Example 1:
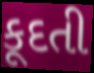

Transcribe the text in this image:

કૂદતી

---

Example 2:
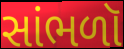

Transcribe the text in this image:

સાંભળૉ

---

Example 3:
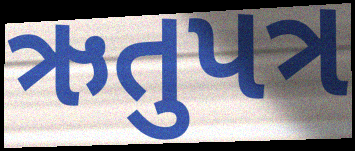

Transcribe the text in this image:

ઋતુપત્ર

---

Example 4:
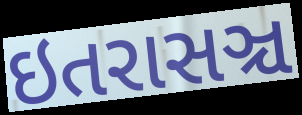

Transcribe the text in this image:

ઇતરાસઞ્ચ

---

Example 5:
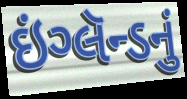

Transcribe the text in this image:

ઇંગ્લૅન્ડનું